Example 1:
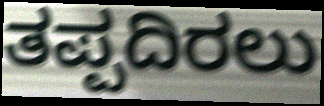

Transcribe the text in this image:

ತಪ್ಪದಿರಲು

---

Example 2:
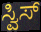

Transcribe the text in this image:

ಸ್ವಿಸ್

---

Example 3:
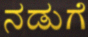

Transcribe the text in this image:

ನಡುಗೆ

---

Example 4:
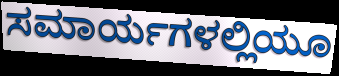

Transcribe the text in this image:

ಸಮಾರ್ಯಗಳಲ್ಲಿಯೂ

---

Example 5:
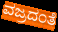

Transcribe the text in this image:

ವಜ್ರದಂತೆ